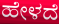
ಹೇಳದೆ